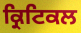
ਕ੍ਰਿਟਿਕਲ